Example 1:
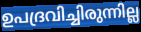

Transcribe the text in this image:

ഉപദ്രവിച്ചിരുന്നില്ല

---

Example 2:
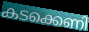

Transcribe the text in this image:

കടക്കെണി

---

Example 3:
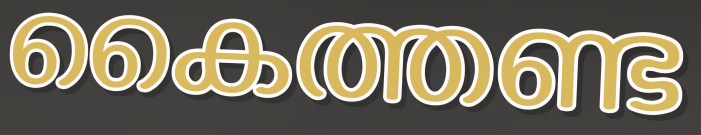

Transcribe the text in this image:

കൈത്തണ്ട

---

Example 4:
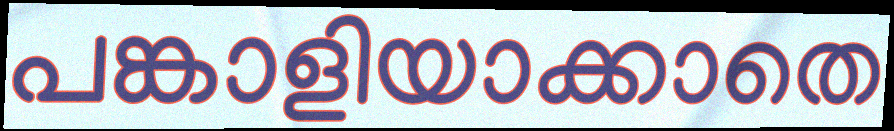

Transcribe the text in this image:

പങ്കാളിയാക്കാതെ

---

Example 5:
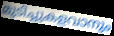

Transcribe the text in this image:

മുടിച്ചുകളവാനും